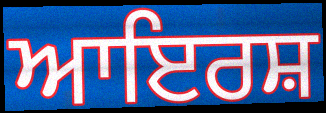
ਆਇਰਸ਼